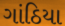
ગાંઠિયા